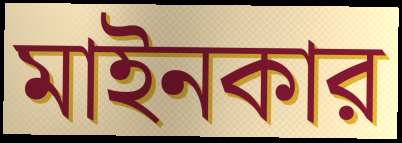
মাইনকার